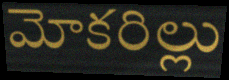
మోకరిల్లు